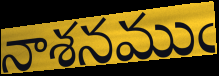
నాశనముఁ